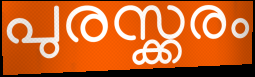
പുരസ്ക്കരം